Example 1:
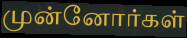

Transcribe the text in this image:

முன்னோர்கள்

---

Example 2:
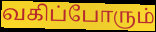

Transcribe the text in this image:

வகிப்போரும்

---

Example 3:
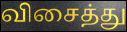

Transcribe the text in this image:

விசைத்து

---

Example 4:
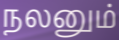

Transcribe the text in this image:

நலனும்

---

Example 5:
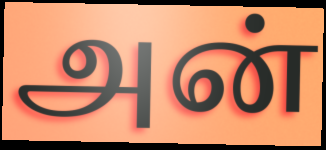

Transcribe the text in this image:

அன்